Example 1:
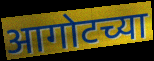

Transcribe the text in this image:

आगोटच्या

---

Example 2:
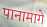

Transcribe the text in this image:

पानामागे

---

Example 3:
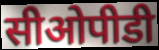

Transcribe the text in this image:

सीओपीडी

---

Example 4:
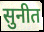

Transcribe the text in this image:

सुनीत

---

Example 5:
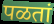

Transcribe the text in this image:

पळतां